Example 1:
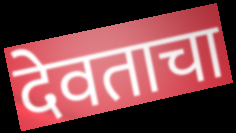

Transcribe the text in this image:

देवताचा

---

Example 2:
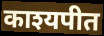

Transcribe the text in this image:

काश्यपीत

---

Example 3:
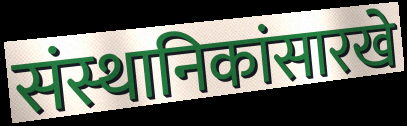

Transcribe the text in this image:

संस्थानिकांसारखे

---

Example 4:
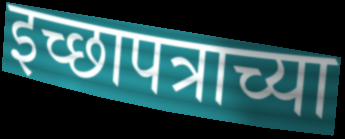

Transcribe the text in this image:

इच्छापत्राच्या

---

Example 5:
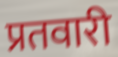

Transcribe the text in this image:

प्रतवारी